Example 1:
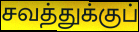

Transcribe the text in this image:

சவத்துக்குப்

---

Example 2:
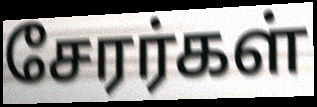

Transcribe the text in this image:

சேரர்கள்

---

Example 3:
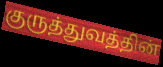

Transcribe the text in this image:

குருத்துவத்தின்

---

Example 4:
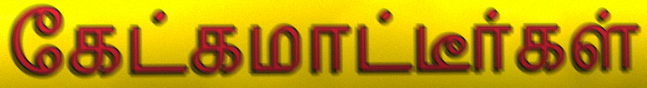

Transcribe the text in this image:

கேட்கமாட்டீர்கள்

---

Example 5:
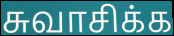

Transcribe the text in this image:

சுவாசிக்க